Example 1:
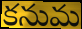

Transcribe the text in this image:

కనుమ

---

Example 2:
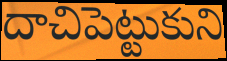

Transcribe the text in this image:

దాచిపెట్టుకుని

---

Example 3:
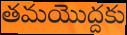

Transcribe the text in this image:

తమయొద్దకు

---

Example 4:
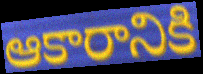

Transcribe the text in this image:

ఆకారానికి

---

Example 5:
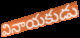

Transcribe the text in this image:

వినాయకుడు